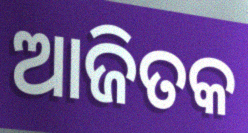
ଆଜିତକ